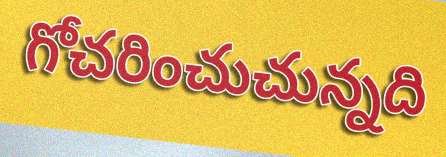
గోచరించుచున్నది